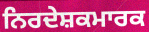
ਨਿਰਦੇਸ਼ਕਮਾਰਕ